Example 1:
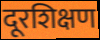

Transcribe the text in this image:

दूरशिक्षण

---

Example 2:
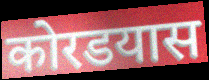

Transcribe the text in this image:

कोरडयास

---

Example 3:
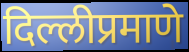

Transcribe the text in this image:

दिल्लीप्रमाणे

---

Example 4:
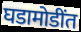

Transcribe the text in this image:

घडामोडींत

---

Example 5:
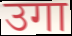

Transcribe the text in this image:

उगा